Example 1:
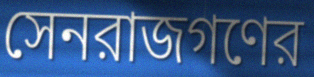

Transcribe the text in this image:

সেনরাজগণের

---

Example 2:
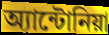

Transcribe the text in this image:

অ্যান্টোনিয়া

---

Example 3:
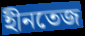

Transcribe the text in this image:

হীনতেজ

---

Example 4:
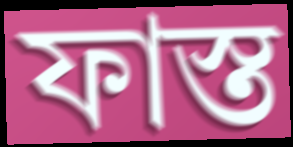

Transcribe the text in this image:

ফাস্ত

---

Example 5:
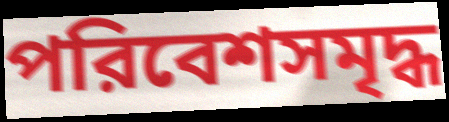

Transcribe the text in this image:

পরিবেশসমৃদ্ধ